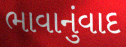
ભાવાનુંવાદ